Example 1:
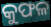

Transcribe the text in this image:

କୁଫଳ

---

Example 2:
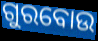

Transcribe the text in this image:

ଗୁରବୋଉ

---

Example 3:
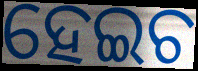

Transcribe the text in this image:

ହେଇଚ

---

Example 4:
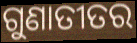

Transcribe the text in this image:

ଗୁଣାତୀତର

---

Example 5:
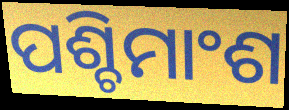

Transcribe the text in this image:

ପଶ୍ଚିମାଂଶ